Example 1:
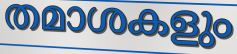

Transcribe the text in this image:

തമാശകളും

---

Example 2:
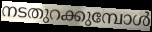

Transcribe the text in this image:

നടതുറക്കുമ്പോൾ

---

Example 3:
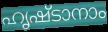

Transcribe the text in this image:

ഹൃഷ്ടാനാം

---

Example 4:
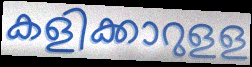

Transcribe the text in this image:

കളിക്കാറുളള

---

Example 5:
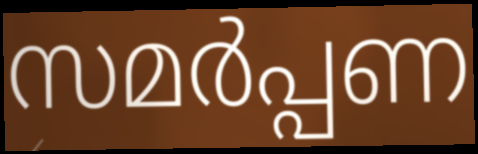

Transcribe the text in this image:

സമർപ്പണ